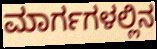
ಮಾರ್ಗಗಳಲ್ಲಿನ